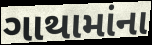
ગાથામાંના